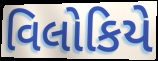
વિલોકિયે